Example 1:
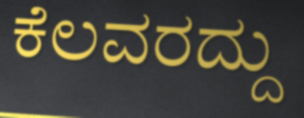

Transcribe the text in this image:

ಕೆಲವರದ್ದು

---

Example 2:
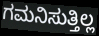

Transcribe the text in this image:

ಗಮನಿಸುತ್ತಿಲ್ಲ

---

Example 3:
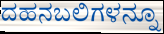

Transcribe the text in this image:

ದಹನಬಲಿಗಳನ್ನೂ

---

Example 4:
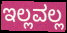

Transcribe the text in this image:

ಇಲ್ಲವಲ್ಲ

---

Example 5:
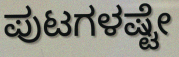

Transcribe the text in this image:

ಪುಟಗಳಷ್ಟೇ